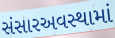
સંસારઅવસ્થામાં